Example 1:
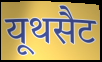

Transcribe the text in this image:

यूथसैट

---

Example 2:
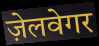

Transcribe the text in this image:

ज़ेलवेगर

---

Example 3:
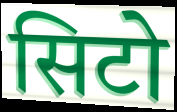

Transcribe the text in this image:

सिटो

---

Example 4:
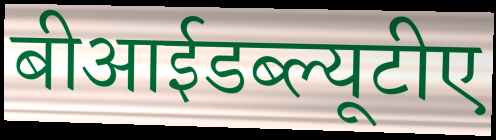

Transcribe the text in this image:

बीआईडब्ल्यूटीए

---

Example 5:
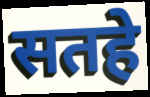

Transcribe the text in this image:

सतहे